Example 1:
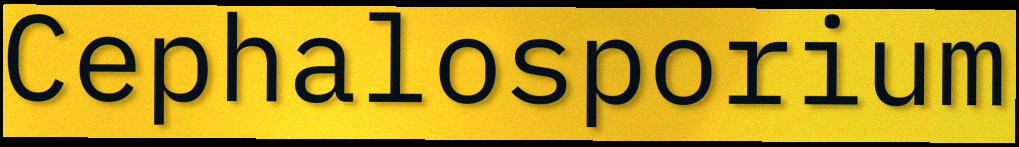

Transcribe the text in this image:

Cephalosporium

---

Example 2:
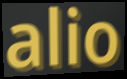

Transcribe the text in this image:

alio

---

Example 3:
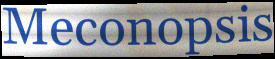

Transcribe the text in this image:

Meconopsis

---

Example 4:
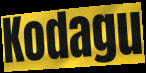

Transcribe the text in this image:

Kodagu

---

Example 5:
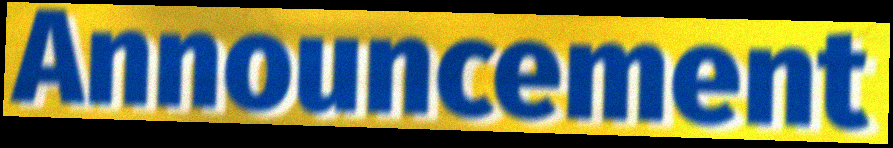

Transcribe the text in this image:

Announcement